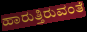
ಹಾರುತ್ತಿರುವಂತೆ